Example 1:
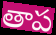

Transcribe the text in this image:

తాప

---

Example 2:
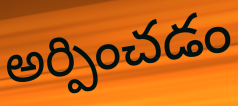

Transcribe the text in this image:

అర్పించడం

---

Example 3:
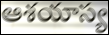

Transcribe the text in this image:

ఆశయాస్య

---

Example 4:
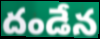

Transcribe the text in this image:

దండేన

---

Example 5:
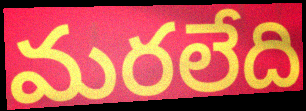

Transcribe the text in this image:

మరలేది